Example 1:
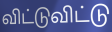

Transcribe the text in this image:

விட்டுவிட்டு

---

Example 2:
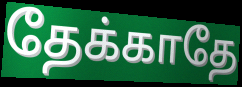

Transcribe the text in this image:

தேக்காதே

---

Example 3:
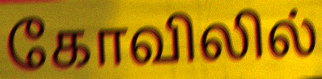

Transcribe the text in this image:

கோவிலில்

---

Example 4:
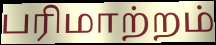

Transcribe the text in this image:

பரிமாற்றம்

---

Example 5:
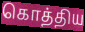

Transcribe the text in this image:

கொத்திய